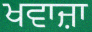
ਖਵਾਜ਼ਾ